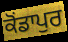
ਕੋਂਡਾਪੁਰ